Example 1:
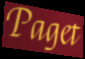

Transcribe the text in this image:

Paget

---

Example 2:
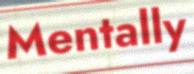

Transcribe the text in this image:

Mentally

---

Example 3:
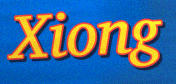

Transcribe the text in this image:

Xiong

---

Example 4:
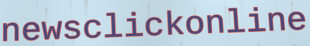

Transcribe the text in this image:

newsclickonline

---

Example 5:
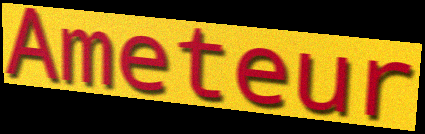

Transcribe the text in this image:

Ameteur